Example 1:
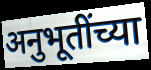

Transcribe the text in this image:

अनुभूतींच्या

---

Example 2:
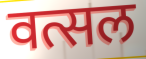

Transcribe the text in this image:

वत्सल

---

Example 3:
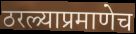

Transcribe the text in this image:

ठरल्याप्रमाणेच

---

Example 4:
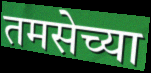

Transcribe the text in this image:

तमसेच्या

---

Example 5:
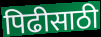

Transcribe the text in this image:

पिढीसाठी